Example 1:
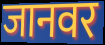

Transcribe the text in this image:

जानवर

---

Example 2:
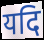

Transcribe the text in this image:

यदि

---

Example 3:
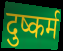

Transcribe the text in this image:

दुष्कर्म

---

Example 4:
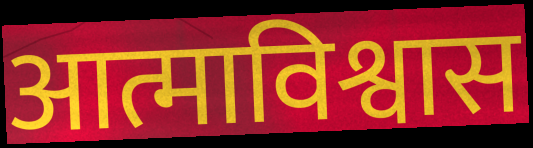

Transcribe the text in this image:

आत्माविश्वास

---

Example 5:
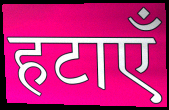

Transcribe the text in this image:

हटाएँ